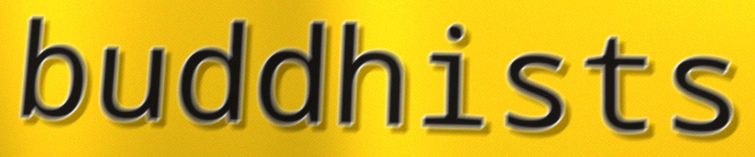
buddhists